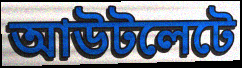
আউটলেটে